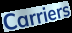
Carriers